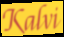
Kalvi